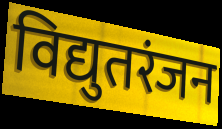
विद्युतरंजन